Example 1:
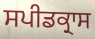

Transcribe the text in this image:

ਸਪੀਡਕ੍ਰਾਸ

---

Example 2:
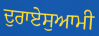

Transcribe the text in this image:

ਦੁਰਾਏਸੁਆਮੀ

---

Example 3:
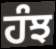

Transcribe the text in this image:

ਹੰਝ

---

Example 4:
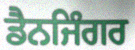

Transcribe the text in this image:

ਡੈਨਜਿੰਗਰ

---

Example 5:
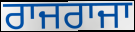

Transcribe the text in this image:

ਰਾਜਰਾਜਾ